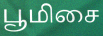
பூமிசை